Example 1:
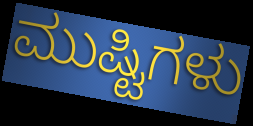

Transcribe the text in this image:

ಮುಷ್ಟಿಗಳು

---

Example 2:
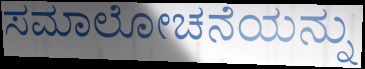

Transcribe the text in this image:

ಸಮಾಲೋಚನೆಯನ್ನು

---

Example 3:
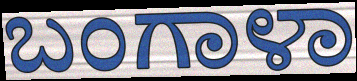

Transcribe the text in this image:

ಬಂಗಾಳಾ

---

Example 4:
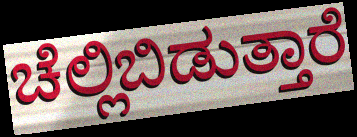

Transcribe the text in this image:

ಚೆಲ್ಲಿಬಿಡುತ್ತಾರೆ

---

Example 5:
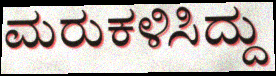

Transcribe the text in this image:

ಮರುಕಳಿಸಿದ್ದು